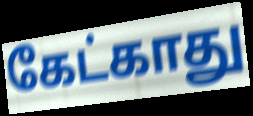
கேட்காது